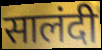
सालंदी